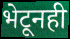
भेटूनही